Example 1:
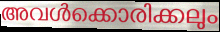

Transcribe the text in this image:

അവൾക്കൊരിക്കലും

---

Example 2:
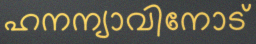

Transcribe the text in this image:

ഹനന്യാവിനോട്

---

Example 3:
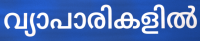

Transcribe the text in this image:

വ്യാപാരികളിൽ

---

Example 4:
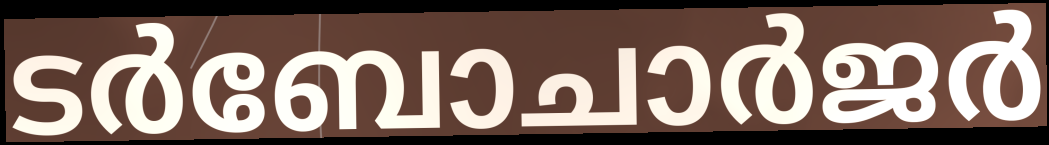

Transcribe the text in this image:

ടർബോചാർജർ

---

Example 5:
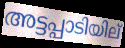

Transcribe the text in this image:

അട്ടപ്പാടിയില്